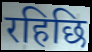
रहिछि